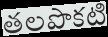
తలపొకటి